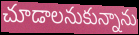
చూడాలనుకున్నాను